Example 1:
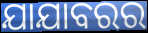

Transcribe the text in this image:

ଯାଯାବରର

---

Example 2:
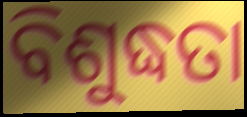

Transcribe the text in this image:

ବିଶୁଦ୍ଧତା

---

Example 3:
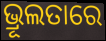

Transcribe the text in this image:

ଭ୍ରୂଲତାରେ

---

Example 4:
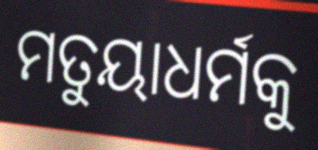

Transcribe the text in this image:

ମତୁୟାଧର୍ମକୁ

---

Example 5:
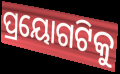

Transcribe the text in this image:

ପ୍ରୟୋଗଟିକୁ